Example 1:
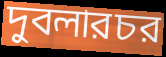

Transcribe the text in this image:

দুবলারচর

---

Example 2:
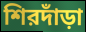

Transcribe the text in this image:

শিরদাঁড়া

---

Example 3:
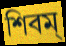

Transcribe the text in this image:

শিবম্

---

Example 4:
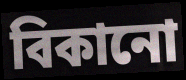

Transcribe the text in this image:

বিকানো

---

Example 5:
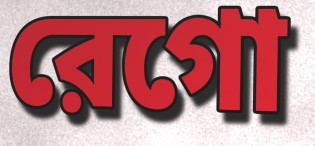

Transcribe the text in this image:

রেগো